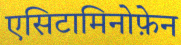
एसिटामिनोफ़ेन